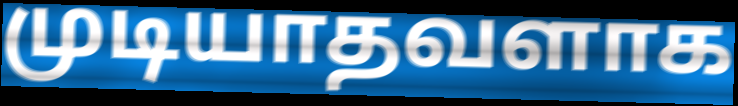
முடியாதவளாக